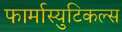
फार्मास्युटिकल्स